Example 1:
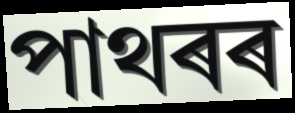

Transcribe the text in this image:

পাথৰৰ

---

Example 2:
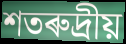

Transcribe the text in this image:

শতৰুদ্ৰীয়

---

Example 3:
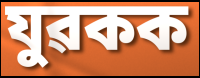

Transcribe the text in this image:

যুৱকক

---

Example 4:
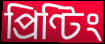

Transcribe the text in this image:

প্ৰিণ্টিং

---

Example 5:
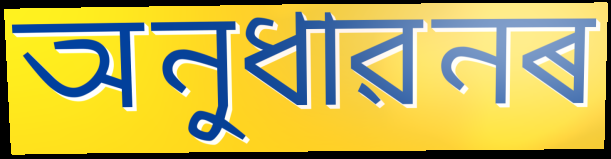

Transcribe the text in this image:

অনুধাৱনৰ